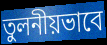
তুলনীয়ভাবে